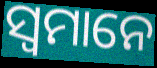
ସ୍ୱମାନେ